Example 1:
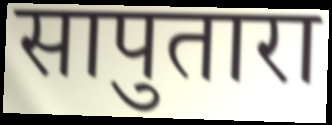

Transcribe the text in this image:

सापुतारा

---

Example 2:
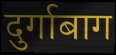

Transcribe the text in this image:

दुर्गाबाग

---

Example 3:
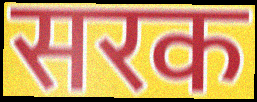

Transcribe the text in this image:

सरक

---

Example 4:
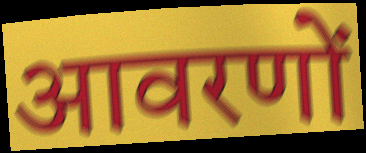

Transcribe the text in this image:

आवरणों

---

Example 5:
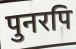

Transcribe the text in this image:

पुनरपि